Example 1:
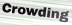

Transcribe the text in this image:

Crowding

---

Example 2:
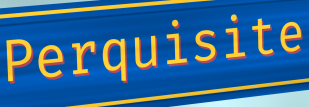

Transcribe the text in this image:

Perquisite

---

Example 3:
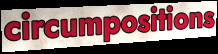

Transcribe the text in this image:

circumpositions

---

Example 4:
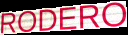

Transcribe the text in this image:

RODERO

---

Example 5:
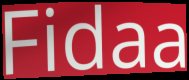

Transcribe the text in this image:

Fidaa